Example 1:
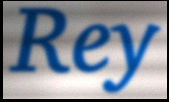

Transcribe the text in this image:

Rey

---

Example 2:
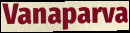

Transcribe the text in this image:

Vanaparva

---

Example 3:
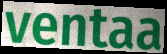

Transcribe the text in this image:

ventaa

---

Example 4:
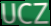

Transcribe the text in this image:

UCZ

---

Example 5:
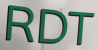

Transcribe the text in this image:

RDT